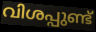
വിശപ്പുണ്ട്